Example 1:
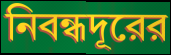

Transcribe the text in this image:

নিবন্ধদূরের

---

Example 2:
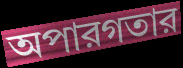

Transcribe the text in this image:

অপারগতার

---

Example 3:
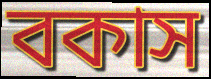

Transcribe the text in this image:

বকাস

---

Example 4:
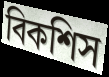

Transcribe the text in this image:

বিকশিস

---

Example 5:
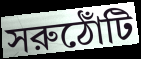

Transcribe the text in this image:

সরুঠোঁটি